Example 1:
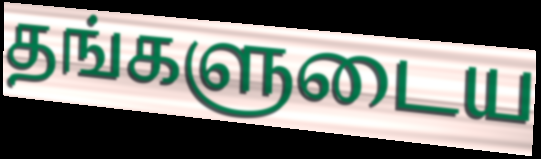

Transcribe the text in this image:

தங்களுடைய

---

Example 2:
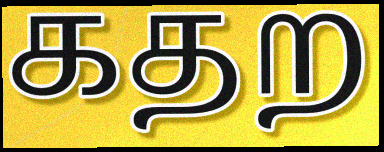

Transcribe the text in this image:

கதற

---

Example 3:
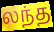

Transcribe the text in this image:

லந்த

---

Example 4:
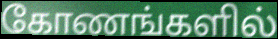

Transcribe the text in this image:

கோணங்களில்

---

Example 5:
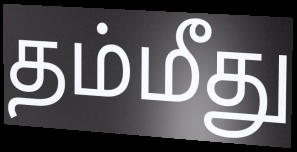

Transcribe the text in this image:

தம்மீது